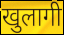
खुलागी